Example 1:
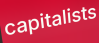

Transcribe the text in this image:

capitalists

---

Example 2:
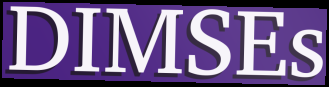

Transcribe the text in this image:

DIMSEs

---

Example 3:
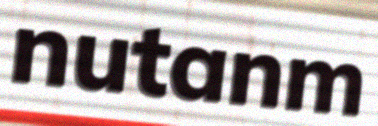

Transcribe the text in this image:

nutanm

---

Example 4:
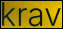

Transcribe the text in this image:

krav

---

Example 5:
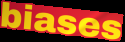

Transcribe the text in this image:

biases